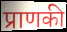
प्राणकी